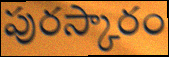
పురస్కారం